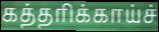
கத்தரிக்காய்ச்